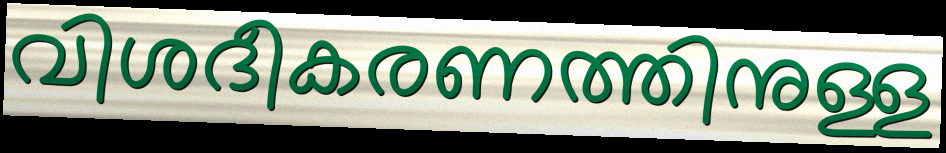
വിശദീകരണത്തിനുള്ള